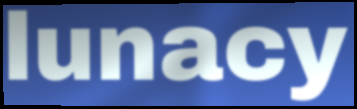
lunacy